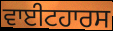
ਵਾਈਟਹਾਰਸ